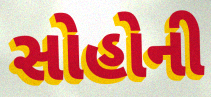
સોહોની